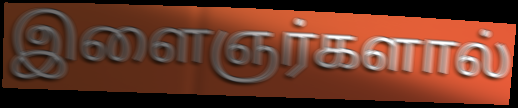
இளைஞர்களால்